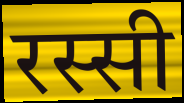
रस्‍सी